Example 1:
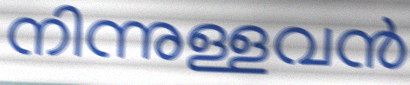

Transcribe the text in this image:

നിന്നുള്ളവൻ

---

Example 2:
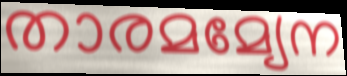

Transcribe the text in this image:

താരമമ്യേന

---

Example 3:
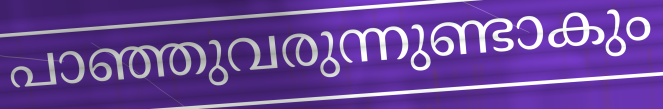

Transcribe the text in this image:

പാഞ്ഞുവരുന്നുണ്ടാകും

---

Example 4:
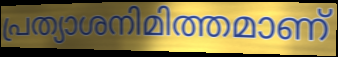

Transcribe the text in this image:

പ്രത്യാശനിമിത്തമാണ്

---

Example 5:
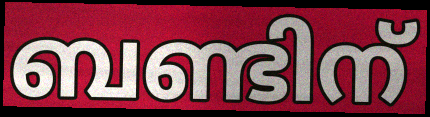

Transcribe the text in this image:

ബണ്ടിന്